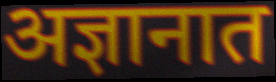
अज्ञानात